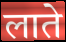
लाते